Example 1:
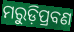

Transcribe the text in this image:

ମରୁଡ଼ିପ୍ରବଣ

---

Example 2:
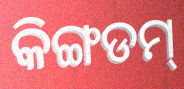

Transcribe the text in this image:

କିଙ୍ଗଡମ୍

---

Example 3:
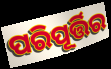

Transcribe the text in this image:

ପରିପୂର୍ତ୍ତିର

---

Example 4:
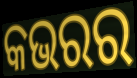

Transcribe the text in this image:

କଭରର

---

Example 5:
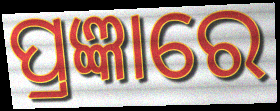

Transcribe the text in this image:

ପ୍ରଜ୍ଞାରେ